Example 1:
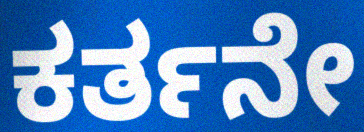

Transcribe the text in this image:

ಕರ್ತನೇ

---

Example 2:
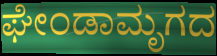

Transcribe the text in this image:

ಘೇಂಡಾಮೃಗದ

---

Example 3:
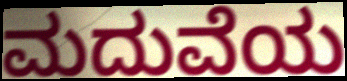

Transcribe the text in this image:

ಮದುವೆಯ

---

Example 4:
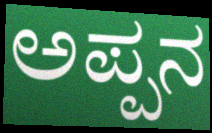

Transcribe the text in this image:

ಅಪ್ಪನ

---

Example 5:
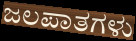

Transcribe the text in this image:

ಜಲಪಾತಗಳು